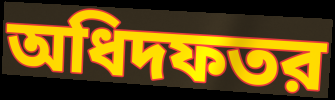
অধিদফতর